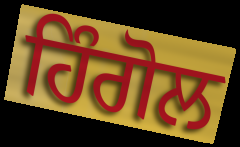
ਹਿੰਗੋਲ